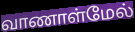
வாணாள்மேல்